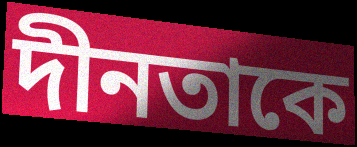
দীনতাকে